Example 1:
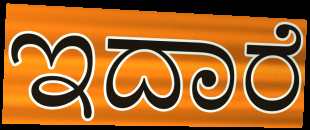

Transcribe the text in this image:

ಇದಾರೆ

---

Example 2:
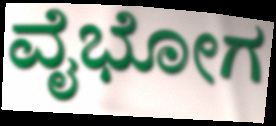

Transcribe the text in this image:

ವೈಭೋಗ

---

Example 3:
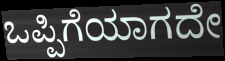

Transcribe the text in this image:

ಒಪ್ಪಿಗೆಯಾಗದೇ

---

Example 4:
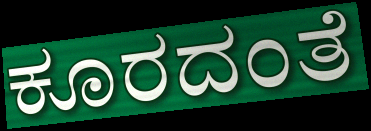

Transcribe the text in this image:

ಕೂರದಂತೆ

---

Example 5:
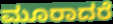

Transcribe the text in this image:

ಮೂರಾದರೆ